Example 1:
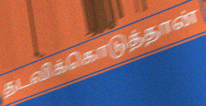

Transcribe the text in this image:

தடவிக்கொடுத்தான்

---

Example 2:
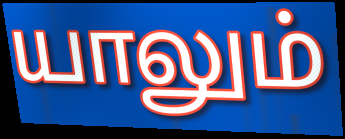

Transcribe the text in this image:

யாலும்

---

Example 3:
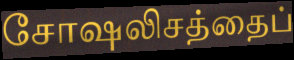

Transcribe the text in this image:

சோஷலிசத்தைப்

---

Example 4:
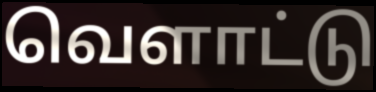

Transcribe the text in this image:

வெளாட்டு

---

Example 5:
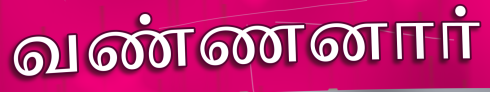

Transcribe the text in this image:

வண்ணனார்